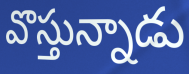
వొస్తున్నాడు